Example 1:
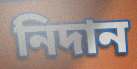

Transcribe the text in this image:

নিদান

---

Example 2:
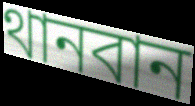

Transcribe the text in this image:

থানবান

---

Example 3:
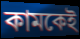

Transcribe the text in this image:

কামকেই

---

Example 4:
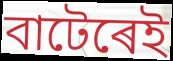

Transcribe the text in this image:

বাটেৰেই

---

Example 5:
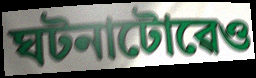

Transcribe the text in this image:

ঘটনাটোৱেও